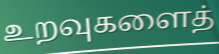
உறவுகளைத்